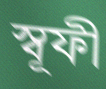
স্বূফী